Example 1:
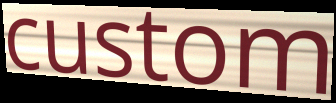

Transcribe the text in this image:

custom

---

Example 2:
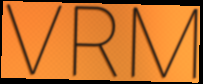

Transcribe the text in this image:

VRM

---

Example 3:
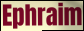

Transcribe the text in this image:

Ephraim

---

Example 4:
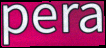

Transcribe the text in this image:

pera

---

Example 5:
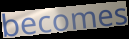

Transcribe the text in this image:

becomes